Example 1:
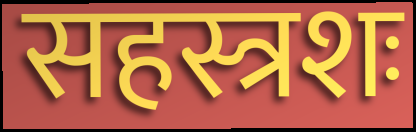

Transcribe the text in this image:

सहस्त्रशः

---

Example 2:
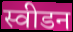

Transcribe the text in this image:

स्वीडन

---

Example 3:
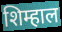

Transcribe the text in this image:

शिम्हाल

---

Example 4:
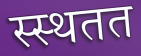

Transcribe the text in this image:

स्स्थतत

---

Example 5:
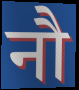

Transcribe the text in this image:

नौ